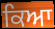
ਕਿਆ